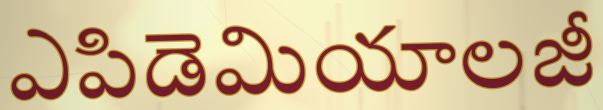
ఎపిడెమియాలజీ